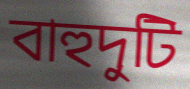
বাহুদুটি